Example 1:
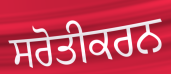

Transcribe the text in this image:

ਸਰੋਤੀਕਰਨ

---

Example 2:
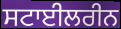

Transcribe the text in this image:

ਸਟਾਈਲਰੀਨ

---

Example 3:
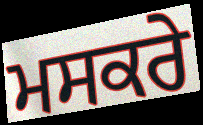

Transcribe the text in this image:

ਮਸਕਰੇ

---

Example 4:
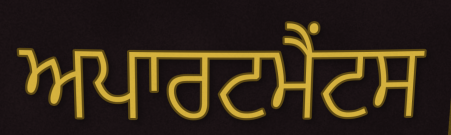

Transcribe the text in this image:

ਅਪਾਰਟਮੈਂਟਸ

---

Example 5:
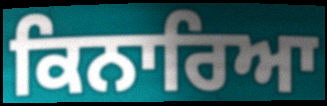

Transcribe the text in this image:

ਕਿਨਾਰਿਆ